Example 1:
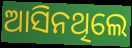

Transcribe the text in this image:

ଆସିନଥିଲେ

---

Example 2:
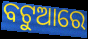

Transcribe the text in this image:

ବଟୁଆରେ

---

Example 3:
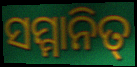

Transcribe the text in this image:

ସମ୍ମାନିତ୍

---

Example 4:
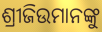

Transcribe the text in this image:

ଶ୍ରୀଜିଉମାନଙ୍କୁ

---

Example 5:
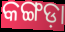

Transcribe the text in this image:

କଙ୍ଗଡ଼ା